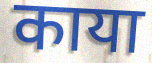
काया